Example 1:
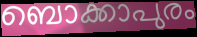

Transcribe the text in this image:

ബൊക്കാപുരം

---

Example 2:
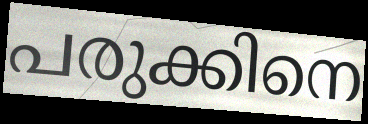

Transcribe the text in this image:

പരുക്കിനെ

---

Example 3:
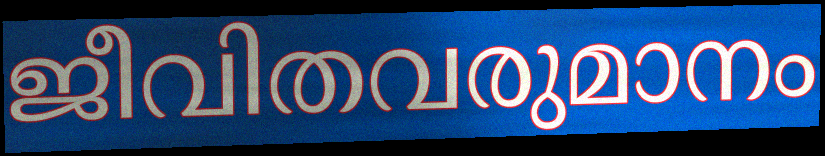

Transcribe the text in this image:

ജീവിതവരുമാനം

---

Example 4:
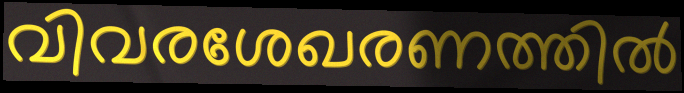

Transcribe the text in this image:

വിവരശേഖരണത്തിൽ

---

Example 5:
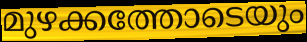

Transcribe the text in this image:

മുഴക്കത്തോടെയും